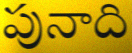
పునాది